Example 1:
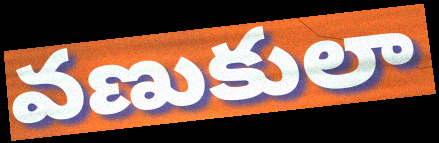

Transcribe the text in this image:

వణుకులా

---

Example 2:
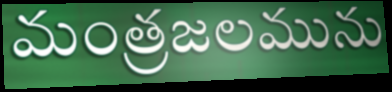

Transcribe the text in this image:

మంత్రజలమును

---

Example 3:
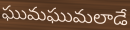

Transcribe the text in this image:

ఘుమఘుమలాడే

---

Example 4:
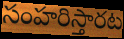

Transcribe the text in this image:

సంహరిస్తారట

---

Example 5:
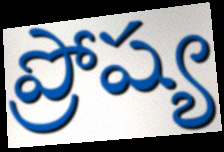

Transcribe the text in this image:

ప్రోష్య